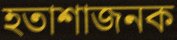
হতাশাজনক